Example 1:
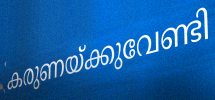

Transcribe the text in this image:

കരുണയ്ക്കുവേണ്ടി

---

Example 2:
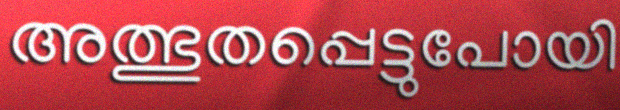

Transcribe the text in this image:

അത്ഭുതപ്പെട്ടുപോയി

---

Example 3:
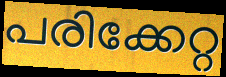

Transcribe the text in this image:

പരിക്കേറ്റ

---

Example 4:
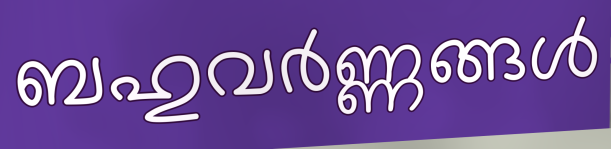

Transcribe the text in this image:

ബഹുവർണ്ണങ്ങൾ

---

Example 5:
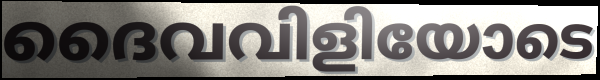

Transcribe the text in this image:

ദൈവവിളിയോടെ